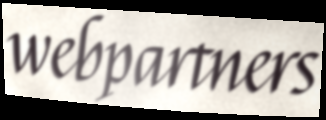
webpartners